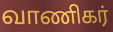
வாணிகர்